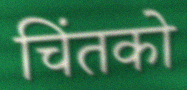
चिंतको